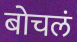
बोचलं